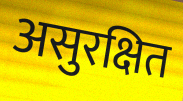
असुरक्षित